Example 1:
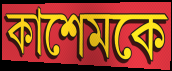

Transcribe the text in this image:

কাশেমকে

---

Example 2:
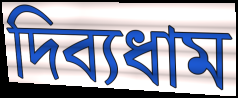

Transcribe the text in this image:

দিব্যধাম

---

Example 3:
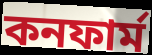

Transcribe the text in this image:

কনফার্ম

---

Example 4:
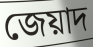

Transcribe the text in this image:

জেয়াদ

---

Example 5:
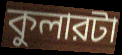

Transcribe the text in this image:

কুলারটা